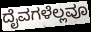
ದೈವಗಳೆಲ್ಲವೂ